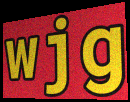
wjg